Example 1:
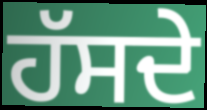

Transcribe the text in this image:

ਹੱਸਦੇ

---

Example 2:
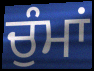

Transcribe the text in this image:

ਚੁੰਮਾਂ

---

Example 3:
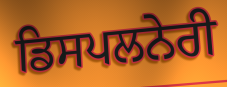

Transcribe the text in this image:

ਡਿਸਪਲਨੇਰੀ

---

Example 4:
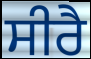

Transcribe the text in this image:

ਸੀਰੈ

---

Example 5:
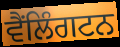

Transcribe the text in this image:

ਵੈਂਲਿੰਗਟਨ